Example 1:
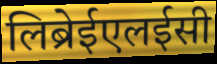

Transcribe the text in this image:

लिब्रेईएलईसी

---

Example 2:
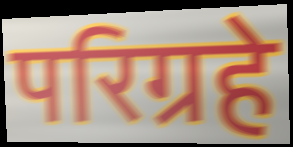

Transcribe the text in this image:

परिग्रहे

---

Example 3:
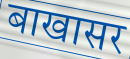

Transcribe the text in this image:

बाखासर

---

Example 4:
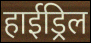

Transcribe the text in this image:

हाईड्रिल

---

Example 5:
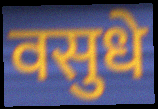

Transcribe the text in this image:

वसुधे